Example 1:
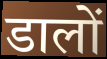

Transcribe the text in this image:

डालों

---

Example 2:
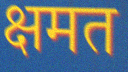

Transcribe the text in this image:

क्षमत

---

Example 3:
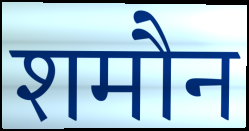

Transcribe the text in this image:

शमौन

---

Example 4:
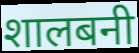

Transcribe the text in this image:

शालबनी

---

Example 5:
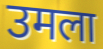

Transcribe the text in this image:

उमला